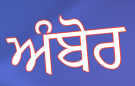
ਅੰਬੋਰ